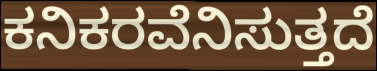
ಕನಿಕರವೆನಿಸುತ್ತದೆ